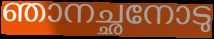
ഞാനച്ഛനോടു